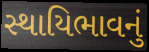
સ્થાયિભાવનું